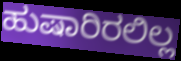
ಹುಷಾರಿರಲಿಲ್ಲ